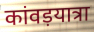
कांवड़यात्रा